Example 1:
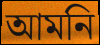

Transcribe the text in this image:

আমনি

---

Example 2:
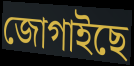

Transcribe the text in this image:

জোগাইছে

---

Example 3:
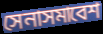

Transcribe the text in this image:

সেনাসমাবেশ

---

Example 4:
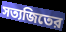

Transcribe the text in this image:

সত্যজিতের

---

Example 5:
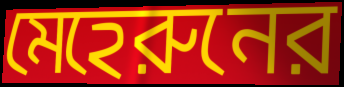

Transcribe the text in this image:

মেহেরুনের